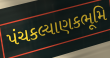
પંચકલ્યાણકભૂમિ